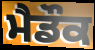
ਮੈਡੌਕ